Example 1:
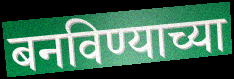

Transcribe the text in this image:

बनविण्याच्या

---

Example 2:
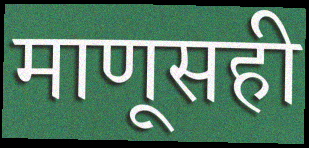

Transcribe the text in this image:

माणूसही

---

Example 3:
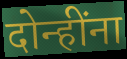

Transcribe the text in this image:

दोन्हींना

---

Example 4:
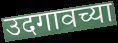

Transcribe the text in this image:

उदगावच्या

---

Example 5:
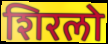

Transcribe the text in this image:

शिरलो